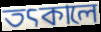
তৎকালে